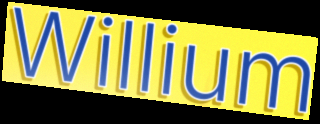
Willium